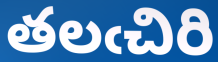
తలఁచిరి